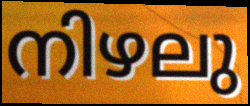
നിഴലു